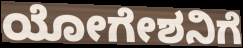
ಯೋಗೇಶನಿಗೆ